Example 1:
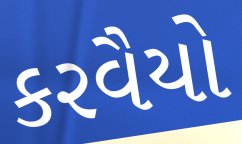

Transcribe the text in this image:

કરવૈયો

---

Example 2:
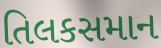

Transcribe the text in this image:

તિલકસમાન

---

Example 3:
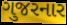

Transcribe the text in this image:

ગુજરનાર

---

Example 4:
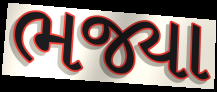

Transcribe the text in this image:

ભજ્યા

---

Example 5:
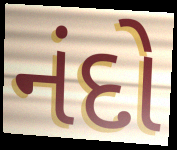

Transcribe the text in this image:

નંદો